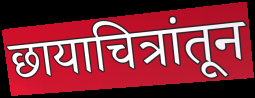
छायाचित्रांतून